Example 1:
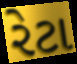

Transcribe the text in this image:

રેટા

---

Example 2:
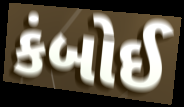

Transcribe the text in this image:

કંબોઈ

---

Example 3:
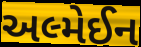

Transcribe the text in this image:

અલ્મેઈન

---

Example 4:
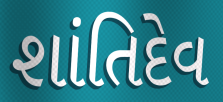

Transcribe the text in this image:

શાંતિદેવ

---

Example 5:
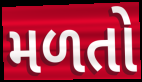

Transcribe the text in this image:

મળતો